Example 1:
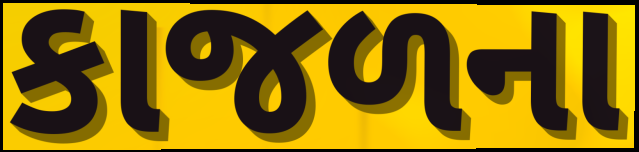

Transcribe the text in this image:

કાજળના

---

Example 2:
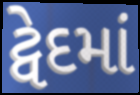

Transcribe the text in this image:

ટ્વેદમાં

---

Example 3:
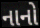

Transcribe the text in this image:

નાનો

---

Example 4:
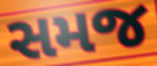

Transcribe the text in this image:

સમજ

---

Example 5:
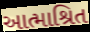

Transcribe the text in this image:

આત્માશ્રિત